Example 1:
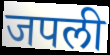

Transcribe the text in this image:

जपली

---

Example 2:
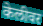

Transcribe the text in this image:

केलीवर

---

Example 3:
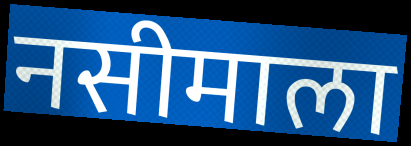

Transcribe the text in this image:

नसीमाला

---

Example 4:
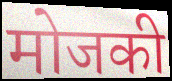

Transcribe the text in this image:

मोजकी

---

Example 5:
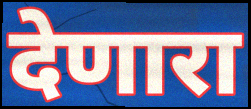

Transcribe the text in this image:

देणारा